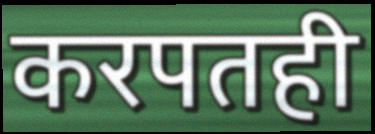
करपतही